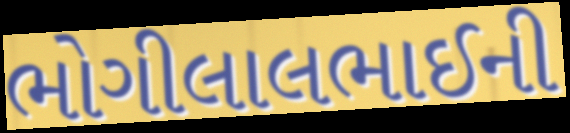
ભોગીલાલભાઈની